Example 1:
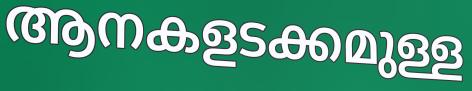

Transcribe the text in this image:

ആനകളടക്കമുള്ള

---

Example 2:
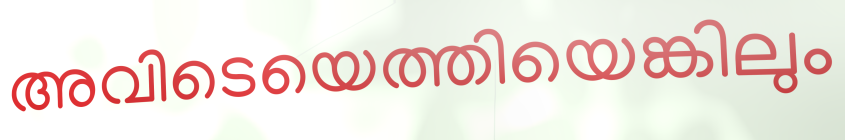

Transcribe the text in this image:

അവിടെയെത്തിയെങ്കിലും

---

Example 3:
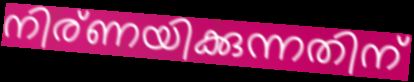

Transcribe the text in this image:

നിര്ണയിക്കുന്നതിന്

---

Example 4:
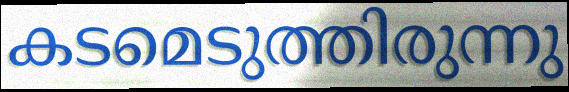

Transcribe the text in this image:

കടമെടുത്തിരുന്നു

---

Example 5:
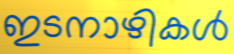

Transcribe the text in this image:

ഇടനാഴികൾ